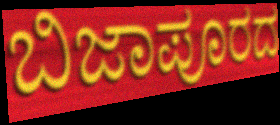
ಬಿಜಾಪೂರದ